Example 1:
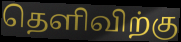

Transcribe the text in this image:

தெளிவிற்கு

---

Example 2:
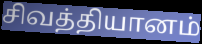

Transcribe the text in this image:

சிவத்தியானம்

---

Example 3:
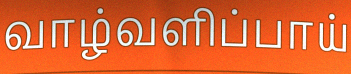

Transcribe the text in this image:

வாழ்வளிப்பாய்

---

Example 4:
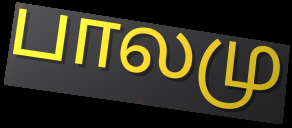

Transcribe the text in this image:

பாலமு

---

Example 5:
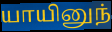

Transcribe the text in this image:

யாயினுந்